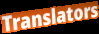
Translators